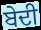
ਬੇਦੀ